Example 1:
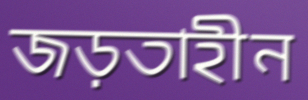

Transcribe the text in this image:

জড়তাহীন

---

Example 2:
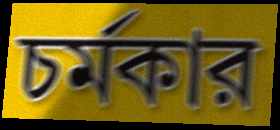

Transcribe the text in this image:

চর্মকার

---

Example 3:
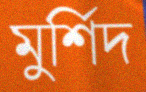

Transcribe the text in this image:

মুর্শিদ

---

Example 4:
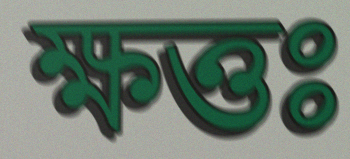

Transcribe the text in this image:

ক্ষত্তঃ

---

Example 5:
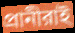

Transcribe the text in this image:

প্রানীরাই